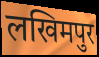
लखिमपुर